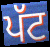
ਪੱਟ